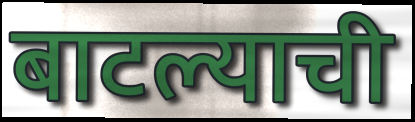
बाटल्याची